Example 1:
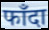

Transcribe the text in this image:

फाँदा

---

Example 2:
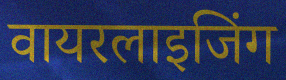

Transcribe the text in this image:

वायरलाइजिंग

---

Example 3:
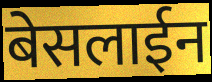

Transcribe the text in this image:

बेसलाईन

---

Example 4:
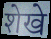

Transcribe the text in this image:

शेखे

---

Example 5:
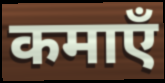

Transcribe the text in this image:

कमाएँ